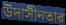
উদাসীনতার